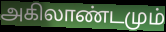
அகிலாண்டமும்